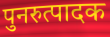
पुनरुत्पादक